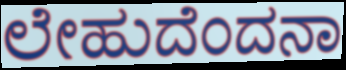
ಲೇಹುದೆಂದನಾ